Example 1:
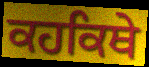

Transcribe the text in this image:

ਕਹਕਿਥੇ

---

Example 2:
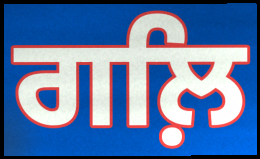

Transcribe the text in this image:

ਗਲ਼ਿ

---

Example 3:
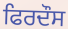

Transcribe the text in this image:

ਫਿਰਦੌਸ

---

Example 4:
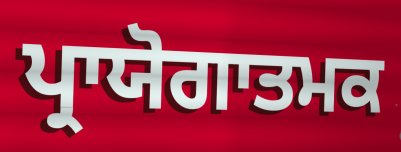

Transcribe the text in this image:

ਪ੍ਰਾਯੋਗਾਤਮਕ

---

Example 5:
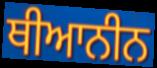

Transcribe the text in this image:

ਥੀਆਨੀਨ